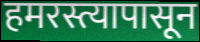
हमरस्त्यापासून